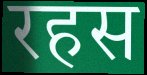
रहस